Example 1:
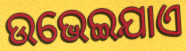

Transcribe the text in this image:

ଉଭେଇଯାଏ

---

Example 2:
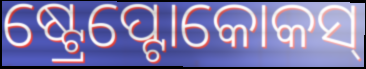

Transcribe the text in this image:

ଷ୍ଟ୍ରେପ୍ଟୋକୋକସ୍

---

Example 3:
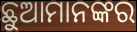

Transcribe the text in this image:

ଛୁଆମାନଙ୍କର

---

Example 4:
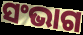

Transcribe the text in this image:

ସଂଭାଗ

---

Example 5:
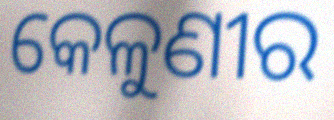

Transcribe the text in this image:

କେଳୁଣୀର